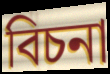
বিচনা